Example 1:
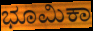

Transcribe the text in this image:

ಭೂಮಿಕಾ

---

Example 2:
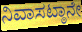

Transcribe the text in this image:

ನಿವಾಸಟ್ಠಾನೇ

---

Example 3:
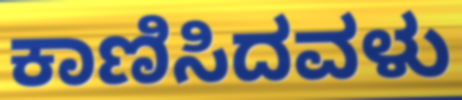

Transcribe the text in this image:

ಕಾಣಿಸಿದವಳು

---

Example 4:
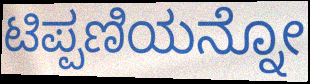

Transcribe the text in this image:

ಟಿಪ್ಪಣಿಯನ್ನೋ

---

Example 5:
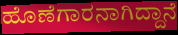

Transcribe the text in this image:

ಹೊಣೆಗಾರನಾಗಿದ್ದಾನೆ